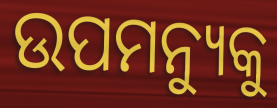
ଉପମନ୍ୟୁକୁ